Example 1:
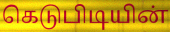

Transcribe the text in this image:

கெடுபிடியின்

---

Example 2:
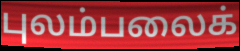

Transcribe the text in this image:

புலம்பலைக்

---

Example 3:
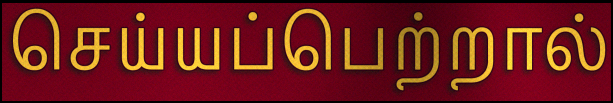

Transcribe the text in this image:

செய்யப்பெற்றால்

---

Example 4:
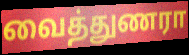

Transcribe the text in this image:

வைத்துணரா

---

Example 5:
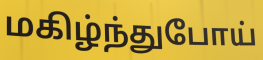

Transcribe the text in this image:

மகிழ்ந்துபோய்